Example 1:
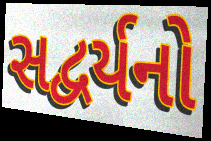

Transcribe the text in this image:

સદ્વર્યનો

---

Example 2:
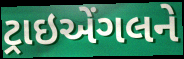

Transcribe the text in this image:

ટ્રાઇએંગલને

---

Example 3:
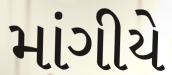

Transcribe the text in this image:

માંગીયે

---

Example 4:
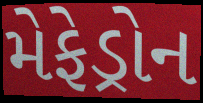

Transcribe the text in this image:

મેફેડ્રોન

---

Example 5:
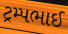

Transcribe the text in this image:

ટ્રમ્પભાઈ